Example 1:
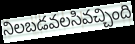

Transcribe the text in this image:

నిలబడవలసివచ్చింది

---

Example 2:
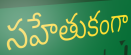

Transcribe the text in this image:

సహేతుకంగా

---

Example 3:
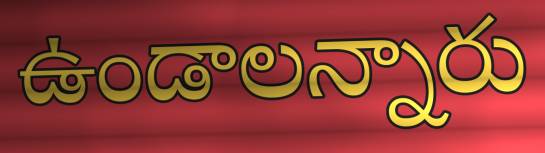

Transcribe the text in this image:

ఉండాలన్నారు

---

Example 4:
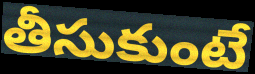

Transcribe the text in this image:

తీసుకుంటే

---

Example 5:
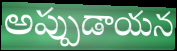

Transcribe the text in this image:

అప్పుడాయన